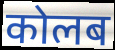
कोलब